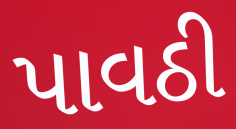
પાવઠી